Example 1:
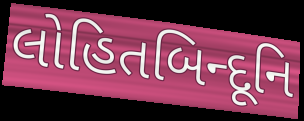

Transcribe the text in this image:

લોહિતબિન્દૂનિ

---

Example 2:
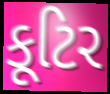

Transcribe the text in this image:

કૂટિર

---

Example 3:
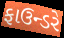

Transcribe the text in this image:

ફાઉન્ડરે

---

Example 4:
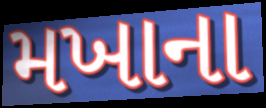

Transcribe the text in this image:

મખાના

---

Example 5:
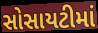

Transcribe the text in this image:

સોસાયટીમાં